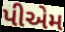
પીએમ